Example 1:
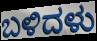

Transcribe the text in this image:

ಬಳಿದಳು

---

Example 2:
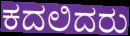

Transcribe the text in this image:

ಕದಲಿದರು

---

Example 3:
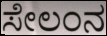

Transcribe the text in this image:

ಸೇಲಂನ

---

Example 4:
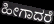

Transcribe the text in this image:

ಹೀಗಾದರೆ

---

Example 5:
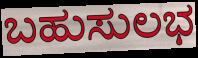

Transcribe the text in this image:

ಬಹುಸುಲಭ